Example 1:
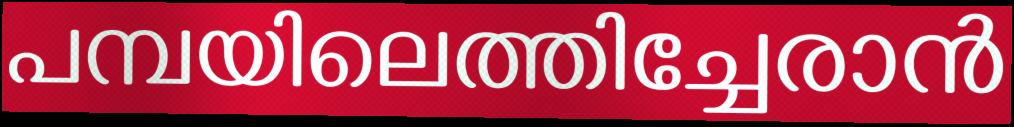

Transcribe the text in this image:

പമ്പയിലെത്തിച്ചേരാൻ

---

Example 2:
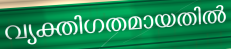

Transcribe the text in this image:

വ്യക്തിഗതമായതിൽ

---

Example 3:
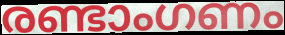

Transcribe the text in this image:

രണ്ടാംഗണം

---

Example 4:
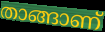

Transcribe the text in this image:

താങ്ങാണ്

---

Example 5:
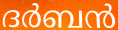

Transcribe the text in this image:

ദർബൻ